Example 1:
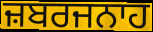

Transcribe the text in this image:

ਜ਼ਬਰਜਨਾਹ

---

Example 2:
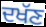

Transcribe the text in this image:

ਦਖੱਣ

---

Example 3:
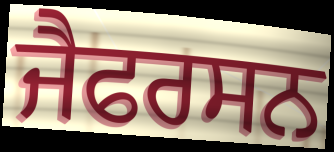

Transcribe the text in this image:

ਜੈਫਰਸਨ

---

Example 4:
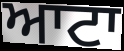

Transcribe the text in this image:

ਆਟਾ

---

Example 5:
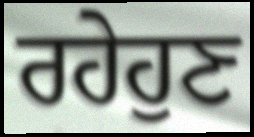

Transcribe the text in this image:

ਰਹੇਹੁਣ